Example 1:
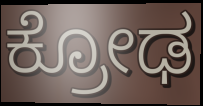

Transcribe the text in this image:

ಕ್ರೋಢ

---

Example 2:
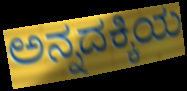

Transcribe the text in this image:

ಅನ್ನದಕ್ಕಿಯ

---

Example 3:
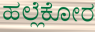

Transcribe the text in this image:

ಹಲ್ಲೆಕೋರ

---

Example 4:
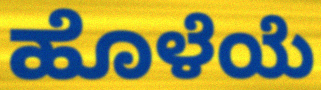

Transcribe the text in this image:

ಹೊಳೆಯೆ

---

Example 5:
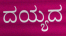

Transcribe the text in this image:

ದಯ್ಯದ